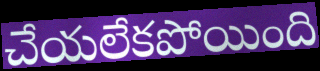
చేయలేకపోయింది